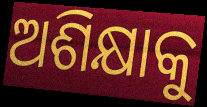
ଅଶିକ୍ଷାକୁ